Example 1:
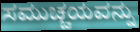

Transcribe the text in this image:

ಸಮುಚ್ಚಯವನ್ನು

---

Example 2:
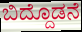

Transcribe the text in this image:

ಬಿದ್ದೊಡನೆ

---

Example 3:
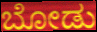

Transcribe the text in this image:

ಬೋಡು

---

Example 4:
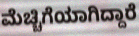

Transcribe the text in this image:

ಮೆಚ್ಚಿಗೆಯಾಗಿದ್ದಾರೆ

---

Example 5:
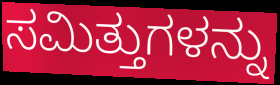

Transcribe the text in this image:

ಸಮಿತ್ತುಗಳನ್ನು